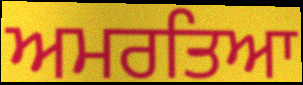
ਅਮਰਤਿਆ